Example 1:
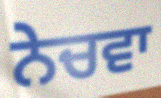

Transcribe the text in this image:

ਨੇਚਵਾ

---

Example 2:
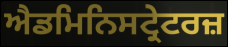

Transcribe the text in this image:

ਐਡਮਿਨਿਸਟ੍ਰੇਟਰਜ਼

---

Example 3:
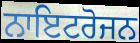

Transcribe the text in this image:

ਨਾਇਟਰੋਜਨ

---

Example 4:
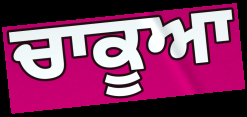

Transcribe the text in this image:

ਚਾਕੂਆ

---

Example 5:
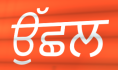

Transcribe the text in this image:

ਉੱਛਲ